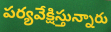
పర్యవేక్షిస్తున్నారు